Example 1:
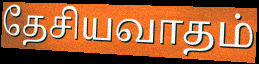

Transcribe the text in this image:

தேசியவாதம்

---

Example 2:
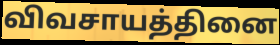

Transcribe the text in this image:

விவசாயத்தினை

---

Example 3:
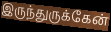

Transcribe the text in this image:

இருந்துருக்கேன்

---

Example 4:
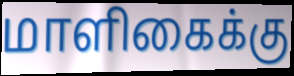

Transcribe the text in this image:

மாளிகைக்கு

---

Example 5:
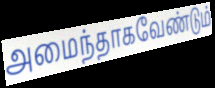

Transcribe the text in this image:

அமைந்தாகவேண்டும்